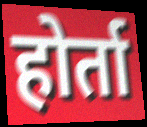
होर्ता